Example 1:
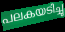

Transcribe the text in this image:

പലകയടിച്ചു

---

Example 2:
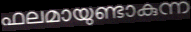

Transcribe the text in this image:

ഫലമായുണ്ടാകുന്ന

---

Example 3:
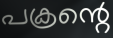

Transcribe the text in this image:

പക്രന്റെ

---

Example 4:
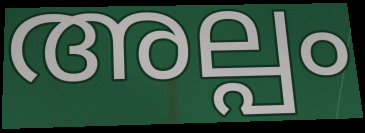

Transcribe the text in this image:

അല്പം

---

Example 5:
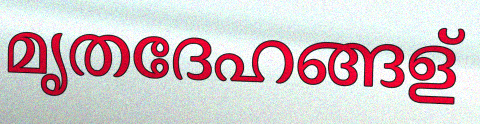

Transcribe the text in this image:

മൃതദേഹങ്ങള്